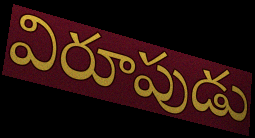
విరూపుడు